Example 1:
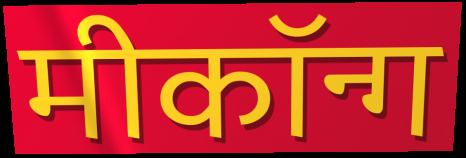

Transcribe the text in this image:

मीकॉन्ग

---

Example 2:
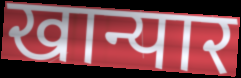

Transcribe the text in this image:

खान्यार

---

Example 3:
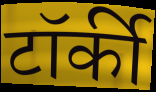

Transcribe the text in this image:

टॉर्की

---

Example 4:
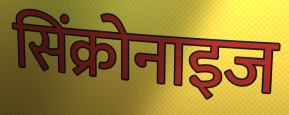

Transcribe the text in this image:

सिंक्रोनाइज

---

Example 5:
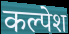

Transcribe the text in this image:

कल्पेश